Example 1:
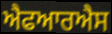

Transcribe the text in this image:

ਐਫਆਰਐਸ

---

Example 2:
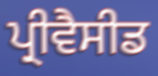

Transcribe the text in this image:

ਪ੍ਰੀਵੈਸੀਡ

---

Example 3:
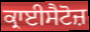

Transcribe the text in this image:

ਕ੍ਰਾਈਸੈਟੋਜ਼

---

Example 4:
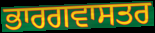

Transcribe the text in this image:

ਭਾਰਗਵਾਸਤਰ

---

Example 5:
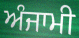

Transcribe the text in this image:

ਅੰਜਾਮੀ